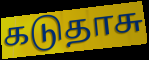
கடுதாசு